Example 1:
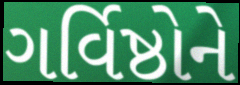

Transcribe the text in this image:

ગર્વિષ્ઠોને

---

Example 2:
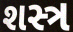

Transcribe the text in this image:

શસ્ત્ર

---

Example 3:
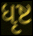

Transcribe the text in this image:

ધૃષ્ટ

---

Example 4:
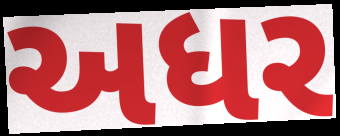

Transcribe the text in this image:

અધર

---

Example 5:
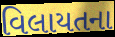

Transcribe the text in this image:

વિલાયતના